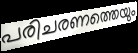
പരിചരണത്തെയും